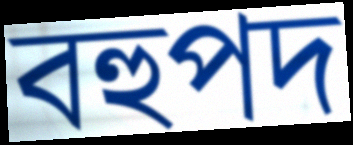
বহুপদ